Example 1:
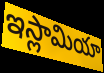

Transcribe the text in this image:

ఇస్లామియా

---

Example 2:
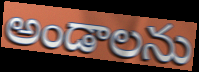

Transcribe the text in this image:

అండాలను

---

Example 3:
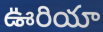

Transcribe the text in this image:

ఊరియా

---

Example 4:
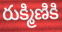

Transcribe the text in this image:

రుక్మిణికి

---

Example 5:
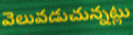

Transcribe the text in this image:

వెలువడుచున్నట్లు